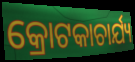
କ୍ରୋଟକାଚାର୍ଯ୍ୟ